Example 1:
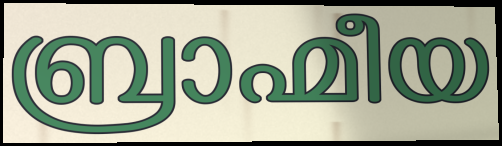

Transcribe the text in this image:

ബ്രാഹ്മീയ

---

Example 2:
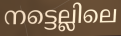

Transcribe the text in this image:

നട്ടെല്ലിലെ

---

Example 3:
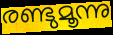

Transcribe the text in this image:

രണ്ടുമൂന്നു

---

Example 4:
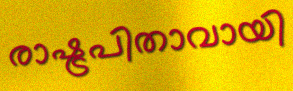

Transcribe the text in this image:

രാഷ്ട്രപിതാവായി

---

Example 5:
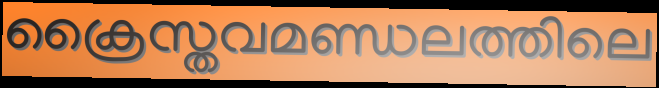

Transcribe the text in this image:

ക്രൈസ്തവമണ്ഡലത്തിലെ